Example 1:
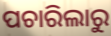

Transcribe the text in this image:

ପଚାରିଲାରୁ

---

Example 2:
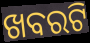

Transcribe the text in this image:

ଖବରଟି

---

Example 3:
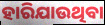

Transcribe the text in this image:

ହାରିଯାଉଥିବା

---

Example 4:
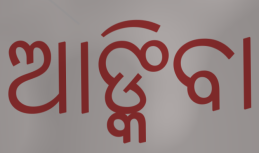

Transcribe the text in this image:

ଆଙ୍କିବା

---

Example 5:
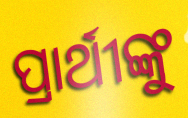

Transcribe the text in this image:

ପ୍ରାର୍ଥୀଙ୍କୁ